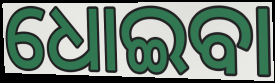
ଧୋଇବା